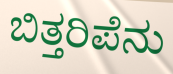
ಬಿತ್ತರಿಪೆನು